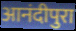
आनंदीपुरा